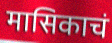
मासिकाचं